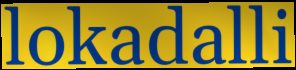
lokadalli